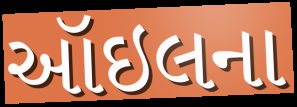
ઑઇલના